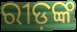
ରୀଡ଼ଙ୍କ